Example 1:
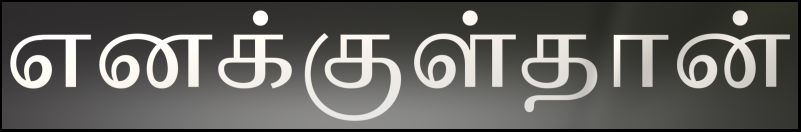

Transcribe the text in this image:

எனக்குள்தான்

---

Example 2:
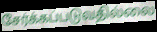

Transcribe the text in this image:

சேர்க்கப்படுவதில்லை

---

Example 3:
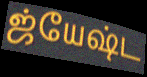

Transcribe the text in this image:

ஜ்யேஷ்ட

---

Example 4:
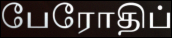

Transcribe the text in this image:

பேரோதிப்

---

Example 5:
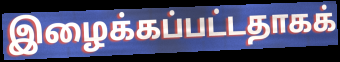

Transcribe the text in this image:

இழைக்கப்பட்டதாகக்